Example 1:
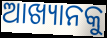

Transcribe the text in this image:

ଆଖ୍ୟାନକୁ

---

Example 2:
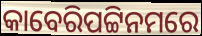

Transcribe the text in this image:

କାବେରିପଟ୍ଟିନମରେ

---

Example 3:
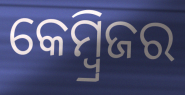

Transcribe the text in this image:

କେମ୍ୱ୍ରିଜର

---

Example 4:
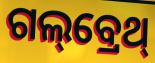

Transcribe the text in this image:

ଗଲ୍‌ବ୍ରେଥ୍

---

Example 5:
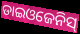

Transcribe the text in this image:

ଡାଇଓଜେନିସ୍